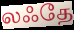
லஃதே